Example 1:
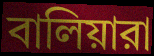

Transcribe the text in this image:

বালিয়ারা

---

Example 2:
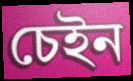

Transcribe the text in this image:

চেইন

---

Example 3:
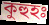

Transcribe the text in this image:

কুহুহঃ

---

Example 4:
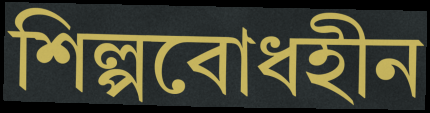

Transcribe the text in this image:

শিল্পবোধহীন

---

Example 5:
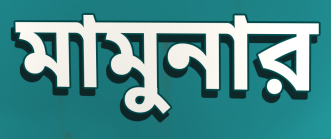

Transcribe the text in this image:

মামুনার